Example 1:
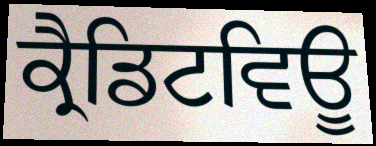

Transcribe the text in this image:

ਕ੍ਰੈਡਿਟਵਿਊ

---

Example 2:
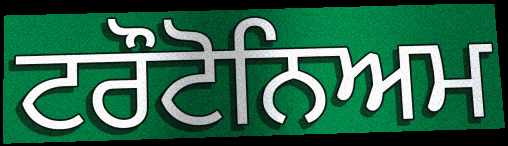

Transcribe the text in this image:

ਟਰੌਟੋਨਿਅਮ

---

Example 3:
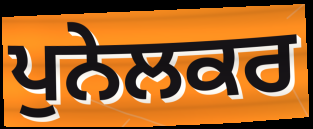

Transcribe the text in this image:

ਪੁਨੇਲਕਰ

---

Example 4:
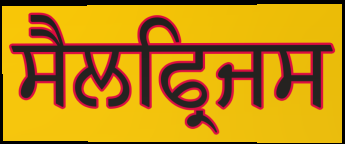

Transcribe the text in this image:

ਸੈਲਫ੍ਰਿਜਸ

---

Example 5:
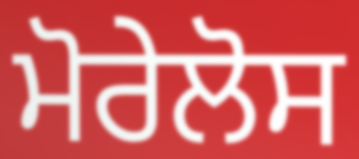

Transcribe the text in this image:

ਮੋਰੇਲੋਸ